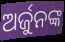
ଅର୍ଜୁନଙ୍କ